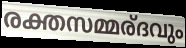
രക്തസമ്മര്ദവും